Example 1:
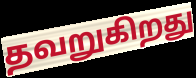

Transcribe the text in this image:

தவறுகிறது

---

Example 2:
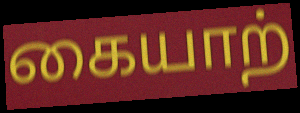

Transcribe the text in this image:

கையாற்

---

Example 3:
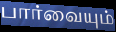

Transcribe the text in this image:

பார்வையும்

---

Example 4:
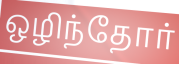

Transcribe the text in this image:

ஒழிந்தோர்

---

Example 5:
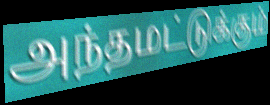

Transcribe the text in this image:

அந்தமட்டுக்கும்